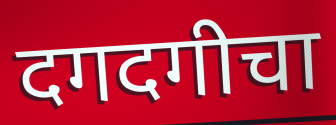
दगदगीचा